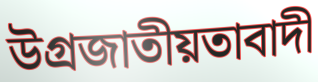
উগ্ৰজাতীয়তাবাদী